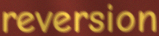
reversion